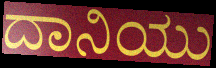
ದಾನಿಯು